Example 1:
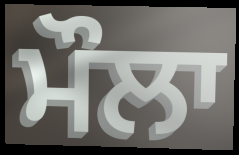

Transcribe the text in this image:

ਮੌਲਾ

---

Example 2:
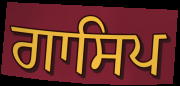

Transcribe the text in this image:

ਗਾਸਿਪ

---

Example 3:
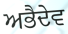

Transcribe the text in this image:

ਅਭੈਦੇਵ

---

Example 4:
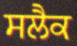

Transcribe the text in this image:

ਸਲੈਕ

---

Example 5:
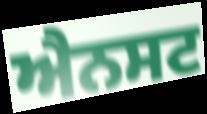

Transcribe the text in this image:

ਐਨਸਟ